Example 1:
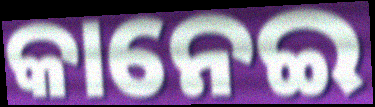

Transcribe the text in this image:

କାନେଇ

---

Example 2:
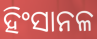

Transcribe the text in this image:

ହିଂସାନଳ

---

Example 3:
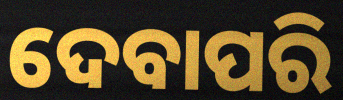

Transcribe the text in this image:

ଦେବାପରି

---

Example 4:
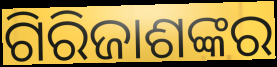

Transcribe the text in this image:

ଗିରିଜାଶଙ୍କର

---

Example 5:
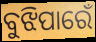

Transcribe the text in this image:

ବୁଝିପାରେଁ